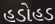
હડોહડ